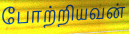
போற்றியவன்